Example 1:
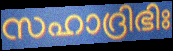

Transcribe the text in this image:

സഹാദ്രിഭിഃ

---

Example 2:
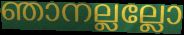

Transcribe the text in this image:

ഞാനല്ലല്ലോ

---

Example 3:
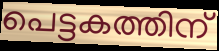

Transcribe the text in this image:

പെട്ടകത്തിന്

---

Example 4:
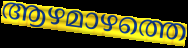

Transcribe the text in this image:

ആഴമാഴത്തെ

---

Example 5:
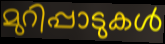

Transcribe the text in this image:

മുറിപ്പാടുകൾ